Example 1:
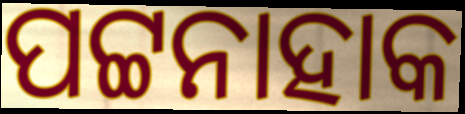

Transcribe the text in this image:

ପଟ୍ଟନାହାକ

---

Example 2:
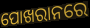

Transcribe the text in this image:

ପୋଖରାନରେ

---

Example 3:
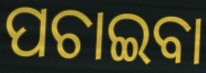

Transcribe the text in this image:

ପଚାଇବା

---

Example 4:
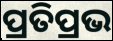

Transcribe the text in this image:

ପ୍ରତିପ୍ରଭ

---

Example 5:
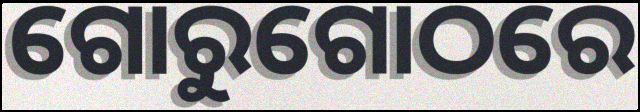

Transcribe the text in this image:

ଗୋରୁଗୋଠରେ